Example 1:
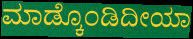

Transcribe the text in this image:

ಮಾಡ್ಕೊಂಡಿದೀಯಾ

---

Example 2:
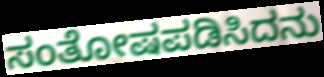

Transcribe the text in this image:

ಸಂತೋಷಪಡಿಸಿದನು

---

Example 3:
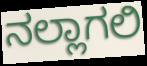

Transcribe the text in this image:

ನಲ್ಲಾಗಲಿ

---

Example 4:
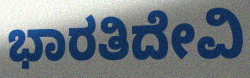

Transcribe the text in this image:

ಭಾರತಿದೇವಿ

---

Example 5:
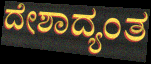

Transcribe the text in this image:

ದೇಶಾದ್ಯಂತ